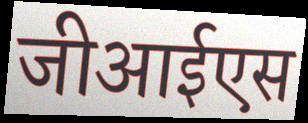
जीआईएस